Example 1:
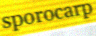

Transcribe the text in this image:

sporocarp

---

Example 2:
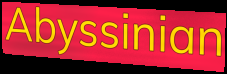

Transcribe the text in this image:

Abyssinian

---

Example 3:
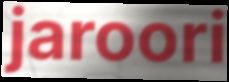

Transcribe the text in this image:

jaroori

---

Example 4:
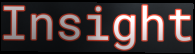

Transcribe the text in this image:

Insight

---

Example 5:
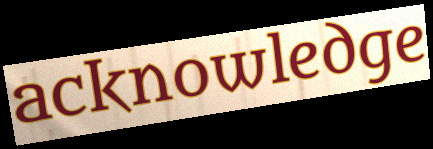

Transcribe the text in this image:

acknowledge